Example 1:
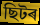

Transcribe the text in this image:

ছিটৰ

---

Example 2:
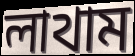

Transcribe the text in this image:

লাথাম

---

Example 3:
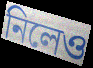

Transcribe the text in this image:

নিলেও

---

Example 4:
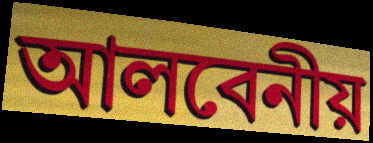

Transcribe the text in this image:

আলবেনীয়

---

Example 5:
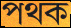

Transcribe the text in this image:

পথক